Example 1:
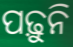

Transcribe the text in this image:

ପଢ଼ୁନି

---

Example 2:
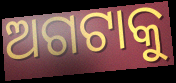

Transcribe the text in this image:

ଅଗଟାକୁ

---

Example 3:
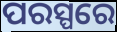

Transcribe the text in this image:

ପରସ୍ପରେ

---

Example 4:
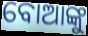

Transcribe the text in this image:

ବୋଆଙ୍କୁ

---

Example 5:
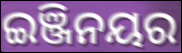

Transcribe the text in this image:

ଇଞ୍ଜିନୟର